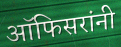
ऑफिसरांनी